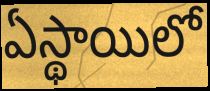
ఏస్థాయిలో